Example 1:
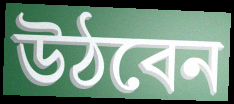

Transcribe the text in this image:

উঠবেন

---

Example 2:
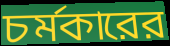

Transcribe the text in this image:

চর্মকারের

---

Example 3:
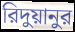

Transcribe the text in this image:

রিদুয়ানুর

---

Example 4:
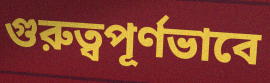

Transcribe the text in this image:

গুরুত্বপূর্ণভাবে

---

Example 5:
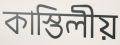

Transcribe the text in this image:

কাস্তিলীয়